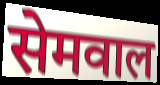
सेमवाल